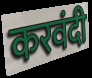
करवंदी